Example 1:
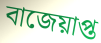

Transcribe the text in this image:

বাজেয়াপ্ত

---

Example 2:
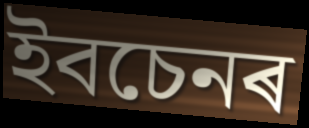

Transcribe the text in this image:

ইবচেনৰ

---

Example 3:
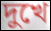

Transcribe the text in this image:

দুখে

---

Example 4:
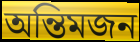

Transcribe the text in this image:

অন্তিমজন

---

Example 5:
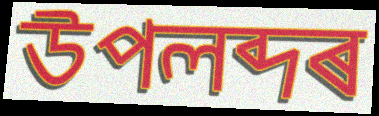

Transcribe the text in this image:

উপলব্দৰ